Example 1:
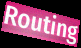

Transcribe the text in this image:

Routing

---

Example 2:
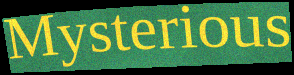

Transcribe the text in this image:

Mysterious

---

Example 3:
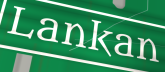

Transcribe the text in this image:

Lankan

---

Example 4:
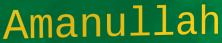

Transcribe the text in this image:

Amanullah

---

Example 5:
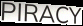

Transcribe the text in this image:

PIRACY